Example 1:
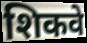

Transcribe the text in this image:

शिकवे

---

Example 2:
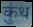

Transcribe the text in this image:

कुंथ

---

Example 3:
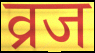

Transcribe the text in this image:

व्रज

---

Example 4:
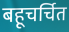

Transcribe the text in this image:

बहूचर्चित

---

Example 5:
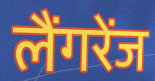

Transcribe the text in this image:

लैंगरेंज